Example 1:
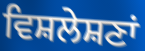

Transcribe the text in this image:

ਵਿਸ਼ਲੇਸ਼ਣਾਂ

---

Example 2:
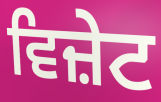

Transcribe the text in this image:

ਵਿਜ਼ੇਟ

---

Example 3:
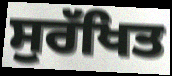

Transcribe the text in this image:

ਸੁਰੱਖਿਤ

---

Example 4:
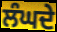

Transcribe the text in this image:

ਲੰਘਦੇ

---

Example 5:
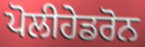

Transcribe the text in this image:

ਪੋਲੀਹੇਡਰੋਨ